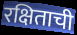
रक्षिताची